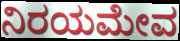
ನಿರಯಮೇವ